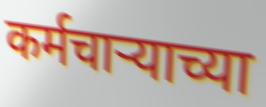
कर्मचाऱ्याच्या